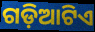
ଗଡ଼ିଆଟିଏ